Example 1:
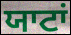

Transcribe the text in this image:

ਯਾਟਾਂ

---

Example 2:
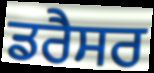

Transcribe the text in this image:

ਡਰੈਸਰ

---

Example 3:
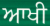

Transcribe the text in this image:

ਆਖੀ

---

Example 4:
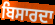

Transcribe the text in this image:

ਬਿਸਾਰਦਾ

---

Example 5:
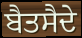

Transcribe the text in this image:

ਬੈਤਸੈਦੇ